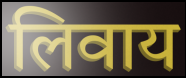
लिवाय